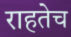
राहतेच